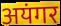
अयंगर